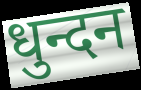
धुन्दन